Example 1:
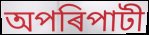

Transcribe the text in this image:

অপৰিপাটী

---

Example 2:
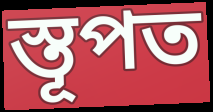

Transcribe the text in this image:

স্তূপত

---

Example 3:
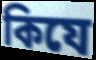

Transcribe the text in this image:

কিযে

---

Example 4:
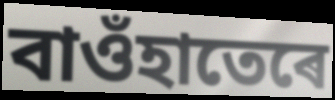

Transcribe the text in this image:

বাওঁহাতেৰে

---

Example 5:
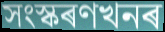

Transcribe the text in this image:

সংস্কৰণখনৰ